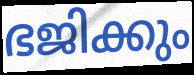
ഭജിക്കും